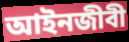
আইনজীবী